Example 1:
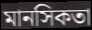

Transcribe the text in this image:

মানসিকতা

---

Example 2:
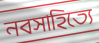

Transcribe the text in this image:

নবসাহিত্যে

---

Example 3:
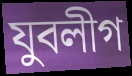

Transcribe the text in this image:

যুবলীগ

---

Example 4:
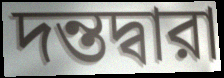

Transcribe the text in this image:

দন্তদ্বারা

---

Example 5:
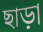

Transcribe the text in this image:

ছাড়া